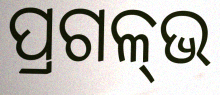
ପ୍ରଗଳ୍‌ଭ